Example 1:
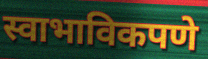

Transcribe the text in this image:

स्वाभाविकपणे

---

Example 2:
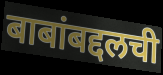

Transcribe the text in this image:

बाबांबद्दलची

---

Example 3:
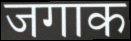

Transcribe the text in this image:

जगाक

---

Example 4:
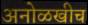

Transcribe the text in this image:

अनोळखीच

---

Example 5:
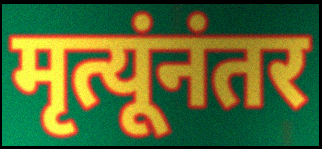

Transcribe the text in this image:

मृत्यूंनंतर